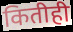
कितीही